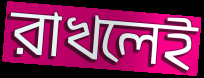
রাখলেই